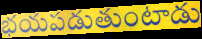
భయపడుతుంటాడు